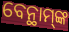
ବେନ୍ଥାମ୍‌ଙ୍କ